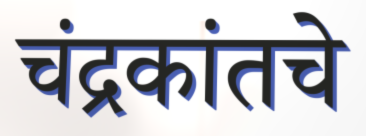
चंद्रकांतचे